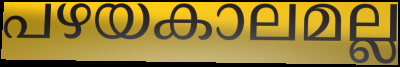
പഴയകാലമല്ല